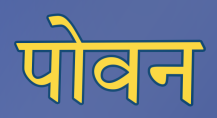
पोवन